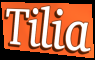
Tilia